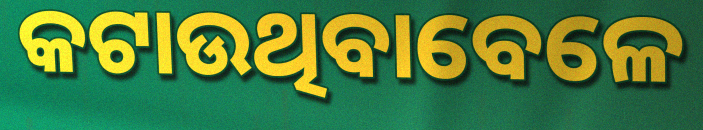
କଟାଉଥିବାବେଳେ